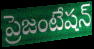
ప్రెజంటేషన్